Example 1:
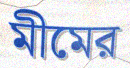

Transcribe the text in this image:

মীমের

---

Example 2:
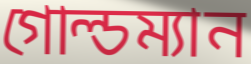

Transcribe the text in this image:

গোল্ডম্যান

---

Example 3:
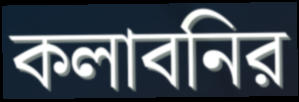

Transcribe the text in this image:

কলাবনির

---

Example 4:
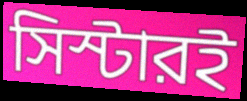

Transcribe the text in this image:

সিস্টারই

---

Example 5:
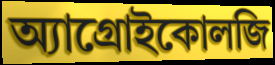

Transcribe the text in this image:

অ্যাগ্রোইকোলজি